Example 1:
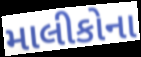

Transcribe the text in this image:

માલીકોના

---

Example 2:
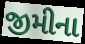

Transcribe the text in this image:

જીમીના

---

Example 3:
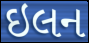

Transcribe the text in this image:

ઇલન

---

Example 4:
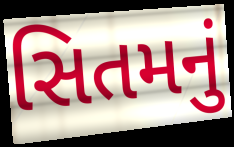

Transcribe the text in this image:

સિતમનું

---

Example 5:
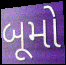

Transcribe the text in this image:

બૂમો